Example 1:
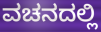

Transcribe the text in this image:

ವಚನದಲ್ಲಿ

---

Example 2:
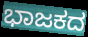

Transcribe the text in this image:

ಭಾಜಕದ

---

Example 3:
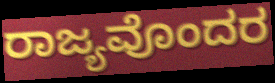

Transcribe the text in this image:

ರಾಜ್ಯವೊಂದರ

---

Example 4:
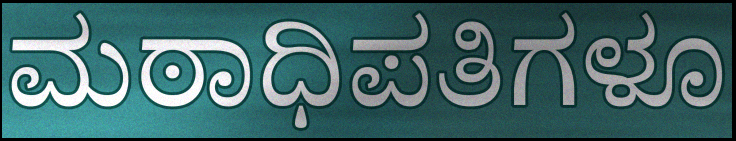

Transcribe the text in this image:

ಮಠಾಧಿಪತಿಗಳೂ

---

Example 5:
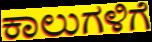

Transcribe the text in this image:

ಕಾಲುಗಳಿಗೆ